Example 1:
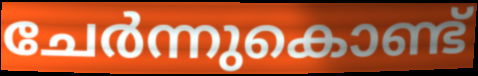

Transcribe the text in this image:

ചേർന്നുകൊണ്ട്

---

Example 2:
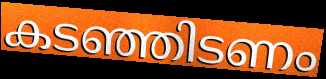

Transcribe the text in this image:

കടഞ്ഞിടണം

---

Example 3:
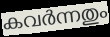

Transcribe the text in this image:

കവർന്നതും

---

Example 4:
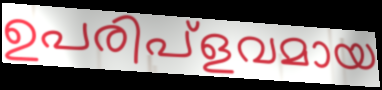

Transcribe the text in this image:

ഉപരിപ്ളവമായ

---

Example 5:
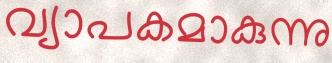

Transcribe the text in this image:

വ്യാപകമാകുന്നു